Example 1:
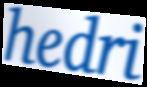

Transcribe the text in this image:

hedri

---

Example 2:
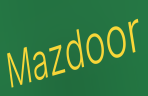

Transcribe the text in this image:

Mazdoor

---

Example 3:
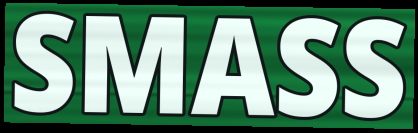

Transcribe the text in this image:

SMASS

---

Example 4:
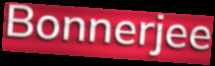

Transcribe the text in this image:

Bonnerjee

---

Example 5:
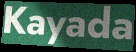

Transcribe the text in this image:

Kayada